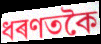
ধৰণতকৈ